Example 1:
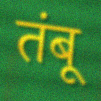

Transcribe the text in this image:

तंबू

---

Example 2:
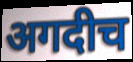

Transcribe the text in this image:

अगदीच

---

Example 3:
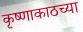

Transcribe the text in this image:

कृष्णाकाठच्या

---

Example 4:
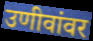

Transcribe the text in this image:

उणीवांवर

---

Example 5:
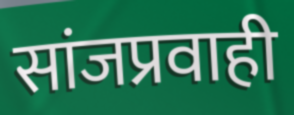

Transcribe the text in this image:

सांजप्रवाही